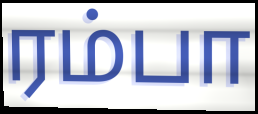
ரம்பா